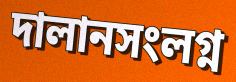
দালানসংলগ্ন